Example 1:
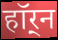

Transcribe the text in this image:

हॉर्न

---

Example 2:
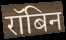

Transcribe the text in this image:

रॉबिन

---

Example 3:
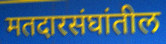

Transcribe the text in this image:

मतदारसंघांतील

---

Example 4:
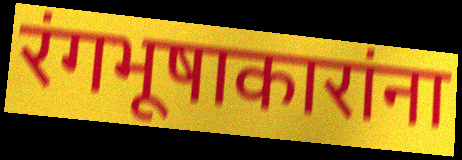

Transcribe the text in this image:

रंगभूषाकारांना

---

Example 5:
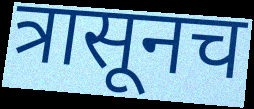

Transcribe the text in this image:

त्रासूनच